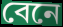
বেনে